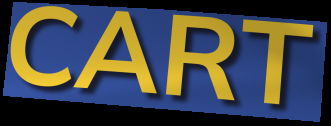
CART